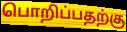
பொறிப்பதற்கு